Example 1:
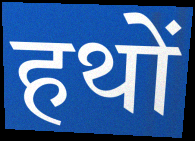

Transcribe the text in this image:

हथों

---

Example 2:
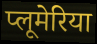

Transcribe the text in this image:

प्लूमेरिया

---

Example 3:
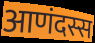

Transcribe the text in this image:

आणंदस्स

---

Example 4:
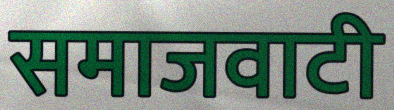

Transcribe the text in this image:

समाजवाटी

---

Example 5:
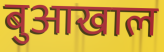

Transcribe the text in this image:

बुआखाल